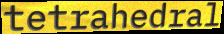
tetrahedral